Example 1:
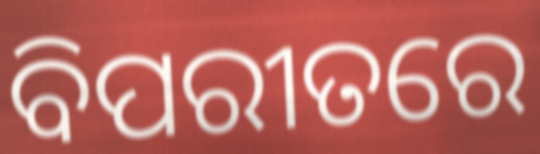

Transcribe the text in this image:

ବିପରୀତରେ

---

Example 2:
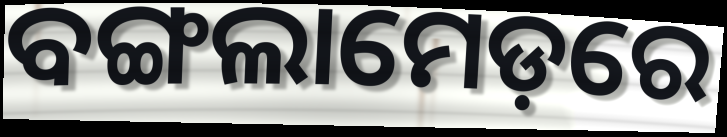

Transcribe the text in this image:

ବଙ୍ଗଲାମେଡ଼ରେ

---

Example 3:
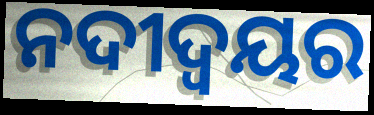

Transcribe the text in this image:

ନଦୀଦ୍ବୟର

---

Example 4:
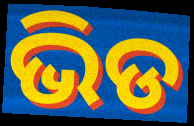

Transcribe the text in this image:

ଭିଡ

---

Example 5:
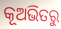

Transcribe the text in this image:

କୂଅଭିତରୁ